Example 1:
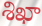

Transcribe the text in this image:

శిఖా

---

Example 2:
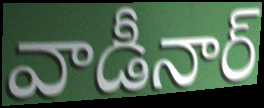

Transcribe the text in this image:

వాడీనార్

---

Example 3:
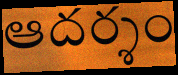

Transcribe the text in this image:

ఆదర్శం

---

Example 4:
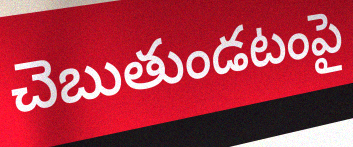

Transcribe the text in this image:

చెబుతుండటంపై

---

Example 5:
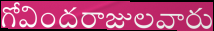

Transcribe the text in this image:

గోవిందరాజులవారు